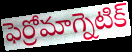
ఫెర్రోమాగ్నెటిక్